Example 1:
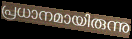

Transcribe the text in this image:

പ്രധാനമായിരുന്നു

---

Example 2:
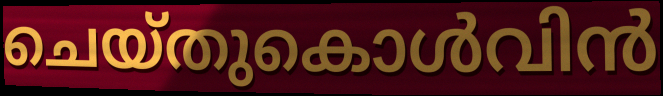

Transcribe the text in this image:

ചെയ്തുകൊൾവിൻ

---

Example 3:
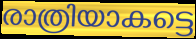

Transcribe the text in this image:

രാത്രിയാകട്ടെ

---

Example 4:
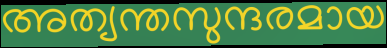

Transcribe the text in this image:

അത്യന്തസുന്ദരമായ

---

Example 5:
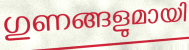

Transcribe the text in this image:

ഗുണങ്ങളുമായി